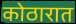
कोठारात